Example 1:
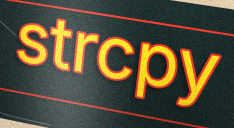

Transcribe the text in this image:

strcpy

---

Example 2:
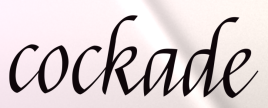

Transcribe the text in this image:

cockade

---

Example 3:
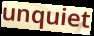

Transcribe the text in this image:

unquiet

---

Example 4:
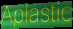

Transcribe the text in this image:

Aplastic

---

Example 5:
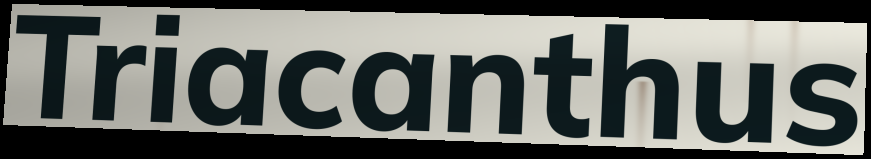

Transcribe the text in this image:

Triacanthus